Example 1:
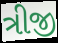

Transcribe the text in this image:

ત્રીજી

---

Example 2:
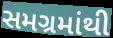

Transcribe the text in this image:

સમગ્રમાંથી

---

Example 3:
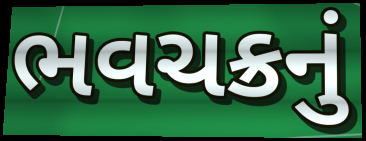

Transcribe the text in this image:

ભવચક્રનું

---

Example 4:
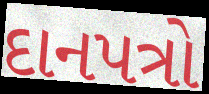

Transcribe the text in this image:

દાનપત્રો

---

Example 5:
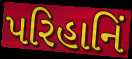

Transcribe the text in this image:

પરિહાનિં